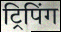
ट्रिपिंग